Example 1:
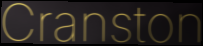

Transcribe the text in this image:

Cranston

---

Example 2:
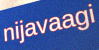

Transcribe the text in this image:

nijavaagi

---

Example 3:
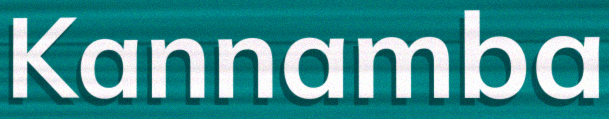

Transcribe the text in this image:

Kannamba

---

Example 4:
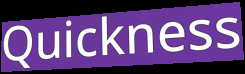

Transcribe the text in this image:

Quickness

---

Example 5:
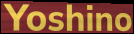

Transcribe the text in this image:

Yoshino